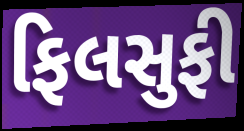
ફિલસુફી